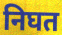
निघत